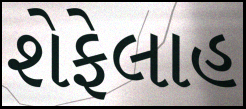
શેફેલાહ